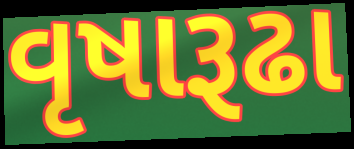
વૃષારૂઢા